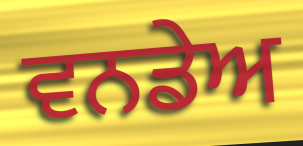
ਵਨਡੇਅ